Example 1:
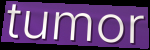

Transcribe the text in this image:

tumor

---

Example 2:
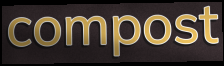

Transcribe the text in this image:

compost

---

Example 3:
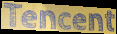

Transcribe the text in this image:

Tencent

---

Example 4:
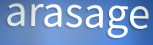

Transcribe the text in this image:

arasage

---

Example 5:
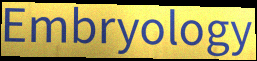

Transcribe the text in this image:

Embryology